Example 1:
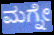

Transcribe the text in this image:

ಮಗ್ನೇ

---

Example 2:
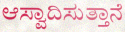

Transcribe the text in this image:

ಆಸ್ವಾದಿಸುತ್ತಾನೆ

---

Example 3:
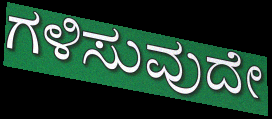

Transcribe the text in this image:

ಗಳಿಸುವುದೇ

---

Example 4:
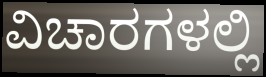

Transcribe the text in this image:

ವಿಚಾರಗಳಲ್ಲಿ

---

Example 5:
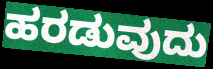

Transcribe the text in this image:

ಹರಡುವುದು